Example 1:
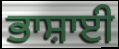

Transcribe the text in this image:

ਭਾਸ਼ਾਈ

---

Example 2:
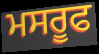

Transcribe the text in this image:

ਮਸਰੂਫ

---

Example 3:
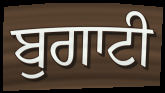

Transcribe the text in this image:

ਬੁਗਾਟੀ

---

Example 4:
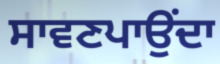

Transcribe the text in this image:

ਸਾਵਣਪਾਉਂਦਾ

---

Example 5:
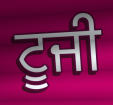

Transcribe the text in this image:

ਟੂਜੀ